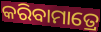
କରିବାମାତ୍ରେ